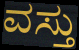
ವಸ್ತು